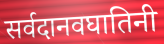
सर्वदानवघातिनी